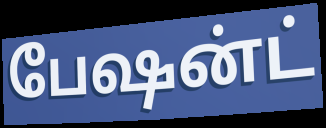
பேஷன்ட்